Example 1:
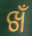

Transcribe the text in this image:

ଖଁ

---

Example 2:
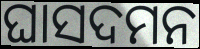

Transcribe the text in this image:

ଘାସଦମନ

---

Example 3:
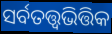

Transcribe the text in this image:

ସର୍ବତତ୍ତ୍ୱଭିତ୍ତିକ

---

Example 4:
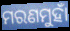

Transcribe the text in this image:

ମରଣମୁହାଁ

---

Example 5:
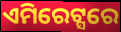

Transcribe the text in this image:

ଏମିରେଟ୍ସରେ